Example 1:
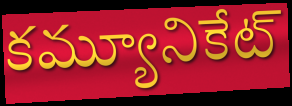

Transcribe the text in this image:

కమ్యూనికేట్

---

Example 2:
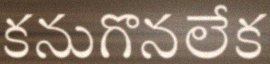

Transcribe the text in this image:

కనుగొనలేక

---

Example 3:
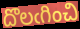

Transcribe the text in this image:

దొలఁగించి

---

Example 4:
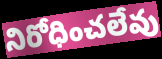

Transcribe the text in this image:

నిరోధించలేవు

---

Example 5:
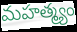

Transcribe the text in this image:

మహత్మ్యం